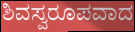
ಶಿವಸ್ವರೂಪವಾದ